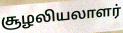
சூழலியலாளர்